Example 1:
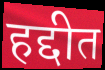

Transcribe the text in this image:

हद्दीत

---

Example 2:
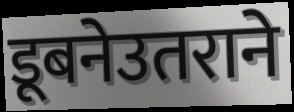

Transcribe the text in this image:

डूबनेउतराने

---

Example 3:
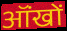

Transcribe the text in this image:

ऑंखों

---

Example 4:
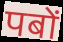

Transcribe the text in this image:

पबों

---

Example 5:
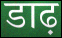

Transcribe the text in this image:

डाढ़